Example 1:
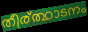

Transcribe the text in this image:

തീര്ത്ഥാടനം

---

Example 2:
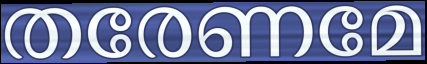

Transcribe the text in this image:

തരേണമേ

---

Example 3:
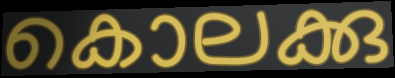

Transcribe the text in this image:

കൊലക്കു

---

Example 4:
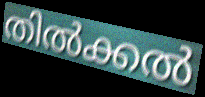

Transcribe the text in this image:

തിൽക്കൽ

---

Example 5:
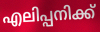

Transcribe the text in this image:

എലിപ്പനിക്ക്